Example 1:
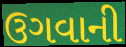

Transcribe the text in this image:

ઉગવાની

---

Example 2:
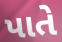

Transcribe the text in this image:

પાતે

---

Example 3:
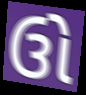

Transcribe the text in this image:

ઉો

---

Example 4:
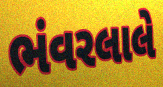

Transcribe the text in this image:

ભંવરલાલે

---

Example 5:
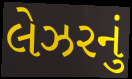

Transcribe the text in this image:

લેઝરનું